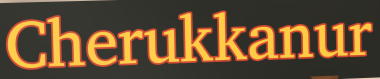
Cherukkanur